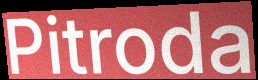
Pitroda